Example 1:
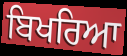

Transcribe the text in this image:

ਬਿਖਰਿਆ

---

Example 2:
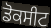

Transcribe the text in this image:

ਡੋਕਸੀਟ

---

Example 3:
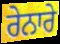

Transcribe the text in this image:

ਰੇਨਾਰੇ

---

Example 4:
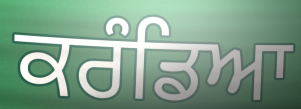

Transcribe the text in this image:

ਕਰੰਡਿਆ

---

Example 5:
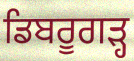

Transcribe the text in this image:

ਡਿਬਰੂਗੜ੍ਹ